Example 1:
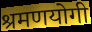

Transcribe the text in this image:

श्रमणयोगी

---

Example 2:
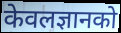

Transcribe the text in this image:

केवलज्ञानको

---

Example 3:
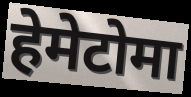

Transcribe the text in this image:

हेमेटोमा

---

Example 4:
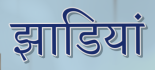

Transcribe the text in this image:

झाडियां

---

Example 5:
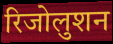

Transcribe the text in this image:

रिजोलुशन